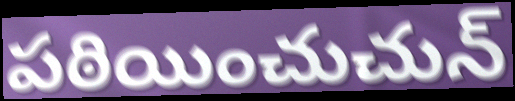
పఠియించుచున్